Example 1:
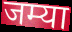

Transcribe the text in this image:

जम्या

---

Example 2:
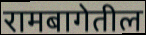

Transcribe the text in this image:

रामबागेतील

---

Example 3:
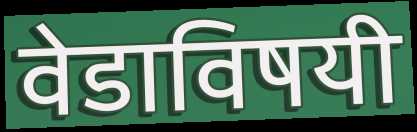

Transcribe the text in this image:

वेडाविषयी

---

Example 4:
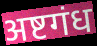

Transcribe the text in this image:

अष्टगंध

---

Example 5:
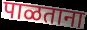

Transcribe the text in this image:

पाळताना